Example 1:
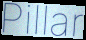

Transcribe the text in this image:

Pillar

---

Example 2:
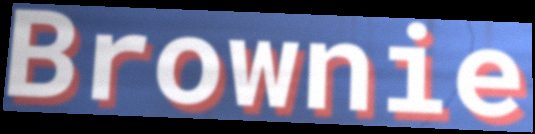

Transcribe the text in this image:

Brownie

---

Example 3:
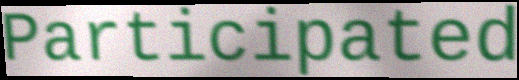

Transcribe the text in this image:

Participated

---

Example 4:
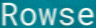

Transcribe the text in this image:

Rowse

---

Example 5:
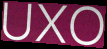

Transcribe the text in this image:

UXO